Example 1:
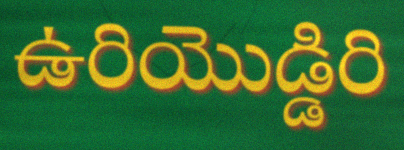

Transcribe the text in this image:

ఉరియొడ్డిరి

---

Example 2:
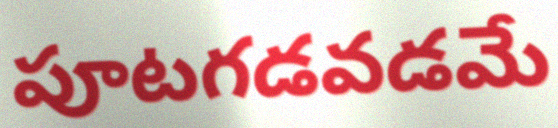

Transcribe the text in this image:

పూటగడవడమే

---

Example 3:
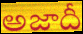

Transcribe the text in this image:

అజాదీ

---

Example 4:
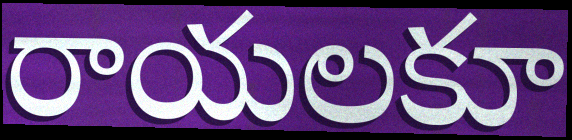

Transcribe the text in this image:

రాయలకూ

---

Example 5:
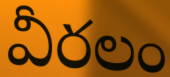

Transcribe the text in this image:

వీరలం